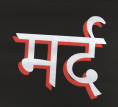
मर्द